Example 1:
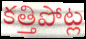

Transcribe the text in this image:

కత్తిపోట్ల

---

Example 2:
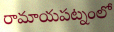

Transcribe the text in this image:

రామాయపట్నంలో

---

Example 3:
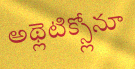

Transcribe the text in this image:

అథ్లెటిక్స్లోనూ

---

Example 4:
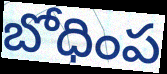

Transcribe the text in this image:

బోధింప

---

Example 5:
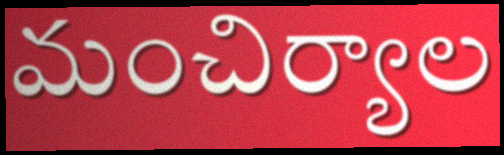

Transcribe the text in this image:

మంచిర్యాల